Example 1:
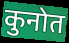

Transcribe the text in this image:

कुनोत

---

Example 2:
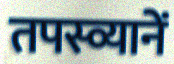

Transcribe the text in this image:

तपस्व्यानें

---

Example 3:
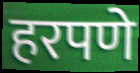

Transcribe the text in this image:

हरपणे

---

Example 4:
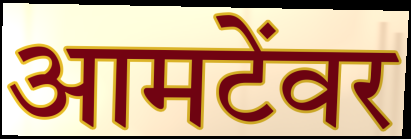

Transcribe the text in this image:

आमटेंवर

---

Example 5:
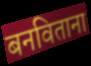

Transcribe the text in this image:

बनविताना